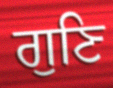
ਗੁਣਿ